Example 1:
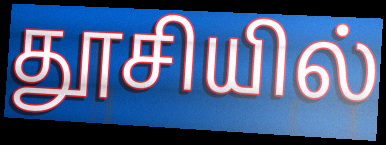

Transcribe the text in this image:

தூசியில்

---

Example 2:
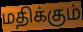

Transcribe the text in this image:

மதிக்கும்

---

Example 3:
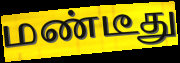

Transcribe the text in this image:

மண்டீது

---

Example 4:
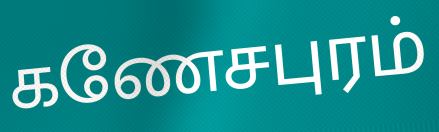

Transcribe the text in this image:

கணேசபுரம்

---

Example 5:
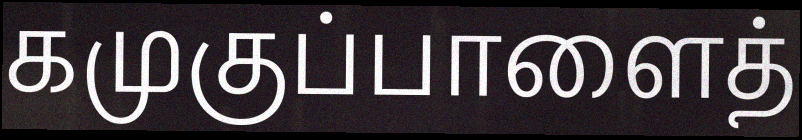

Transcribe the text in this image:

கமுகுப்பாளைத்